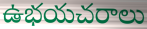
ఉభయచరాలు